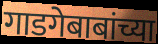
गाडगेबाबांच्या